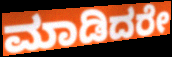
ಮಾಡಿದರೇ